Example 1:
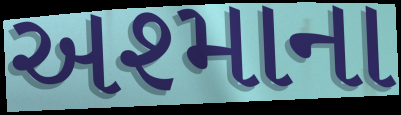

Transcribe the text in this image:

અશ્માના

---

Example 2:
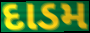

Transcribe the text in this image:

દાડમ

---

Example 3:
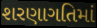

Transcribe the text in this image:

શરણાગતિમાં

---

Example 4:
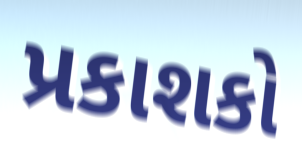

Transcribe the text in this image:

પ્રકાશકો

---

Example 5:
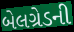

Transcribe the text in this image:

બેલગ્રેડની